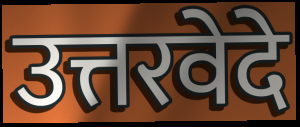
उत्तरवेदे